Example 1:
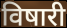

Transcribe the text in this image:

विषारी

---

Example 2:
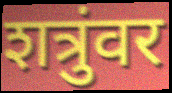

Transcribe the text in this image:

शत्रुंवर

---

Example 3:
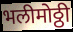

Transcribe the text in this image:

भलीमोठ्ठी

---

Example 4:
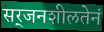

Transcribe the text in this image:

सर्जनशीलतेनं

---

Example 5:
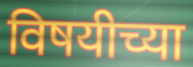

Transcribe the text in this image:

विषयीच्या